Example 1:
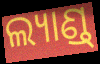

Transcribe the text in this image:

ଲ୍ୟାଣ୍ଡ୍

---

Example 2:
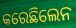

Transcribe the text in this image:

କରେଛିଲେନ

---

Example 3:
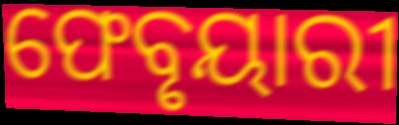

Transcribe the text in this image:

ଫେବୃୟାରୀ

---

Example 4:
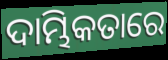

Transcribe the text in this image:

ଦାମ୍ଭିକତାରେ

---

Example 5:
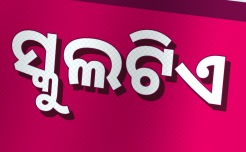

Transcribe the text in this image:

ସ୍କୁଲଟିଏ